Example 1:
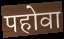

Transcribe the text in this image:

पहोवा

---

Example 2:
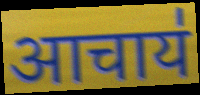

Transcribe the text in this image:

आचाय॑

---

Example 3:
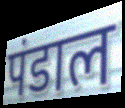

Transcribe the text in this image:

पंडाल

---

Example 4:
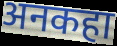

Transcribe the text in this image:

अनकहा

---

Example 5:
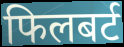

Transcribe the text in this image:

फिलबर्ट